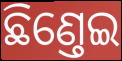
ଛିଣ୍ତେଇ